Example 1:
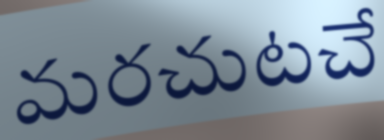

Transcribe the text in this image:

మరచుటచే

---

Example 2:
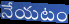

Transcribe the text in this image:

నేయటం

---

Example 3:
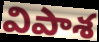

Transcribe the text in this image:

విపాశ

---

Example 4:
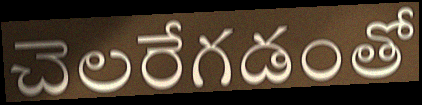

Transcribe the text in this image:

చెలరేగడంతో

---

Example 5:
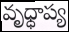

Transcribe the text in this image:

వృధ్ధాప్య